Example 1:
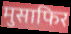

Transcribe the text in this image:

मुसाफिर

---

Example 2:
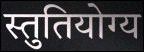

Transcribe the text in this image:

स्तुतियोग्य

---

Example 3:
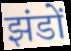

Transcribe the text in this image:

झंडों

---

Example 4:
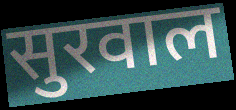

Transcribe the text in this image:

सुरवाल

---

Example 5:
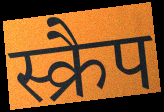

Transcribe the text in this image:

स्क्रैप